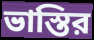
ভাস্তির